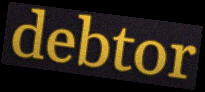
debtor